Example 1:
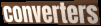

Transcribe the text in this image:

converters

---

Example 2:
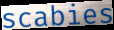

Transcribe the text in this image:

scabies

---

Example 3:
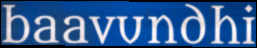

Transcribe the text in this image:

baavundhi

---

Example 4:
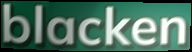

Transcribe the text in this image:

blacken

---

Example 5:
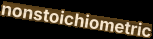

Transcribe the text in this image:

nonstoichiometric